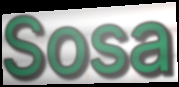
Sosa